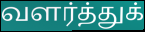
வளர்த்துக்